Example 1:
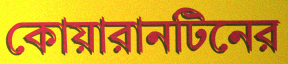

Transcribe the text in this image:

কোয়ারানটিনের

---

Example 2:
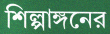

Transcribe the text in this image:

শিল্পাঙ্গনের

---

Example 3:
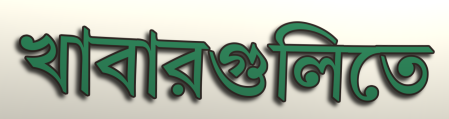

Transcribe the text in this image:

খাবারগুলিতে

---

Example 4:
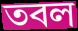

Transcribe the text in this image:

তবল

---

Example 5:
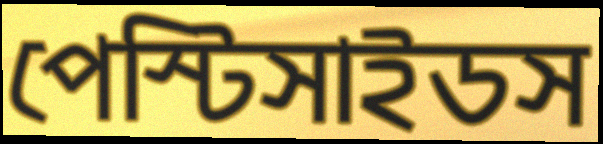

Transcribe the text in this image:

পেস্টিসাইডস